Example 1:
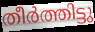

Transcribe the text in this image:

തീർത്തിട്ടു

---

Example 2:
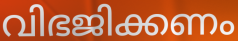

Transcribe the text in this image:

വിഭജിക്കണം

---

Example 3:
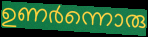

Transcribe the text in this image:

ഉണർന്നൊരു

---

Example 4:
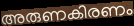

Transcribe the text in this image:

അരുണകിരണം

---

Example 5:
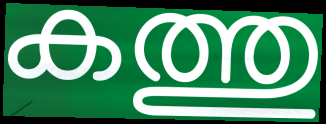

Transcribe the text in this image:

കത്തു